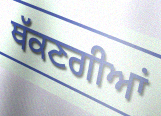
ਥੱਕਣਗੀਆਂ